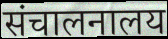
संचालनालय